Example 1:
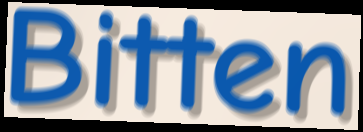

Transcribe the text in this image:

Bitten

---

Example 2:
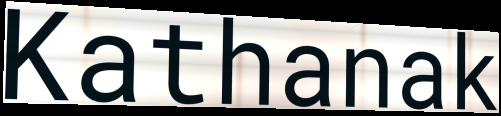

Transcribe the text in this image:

Kathanak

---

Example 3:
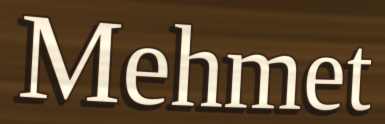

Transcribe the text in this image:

Mehmet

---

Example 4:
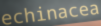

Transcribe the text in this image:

echinacea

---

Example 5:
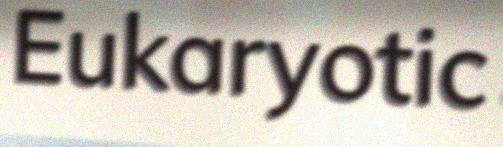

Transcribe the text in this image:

Eukaryotic